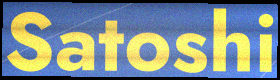
Satoshi